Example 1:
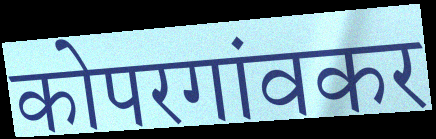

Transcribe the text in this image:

कोपरगांवकर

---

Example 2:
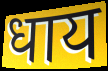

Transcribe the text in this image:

धाय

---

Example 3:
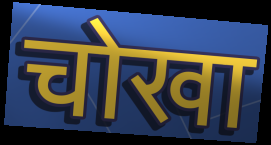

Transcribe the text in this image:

चोखा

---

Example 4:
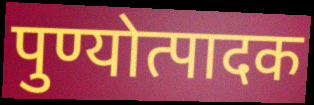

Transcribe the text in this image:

पुण्योत्पादक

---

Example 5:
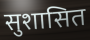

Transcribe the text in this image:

सुशासित